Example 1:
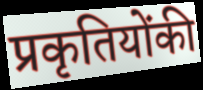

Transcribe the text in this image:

प्रकृतियोंकी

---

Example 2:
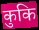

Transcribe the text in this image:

कुकि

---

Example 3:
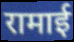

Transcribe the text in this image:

रामाई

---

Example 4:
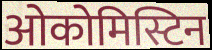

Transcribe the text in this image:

ओकोमिस्टिन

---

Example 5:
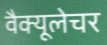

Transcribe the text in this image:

वैक्यूलेचर